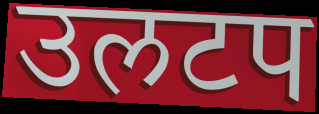
उलटप